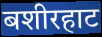
बशीरहाट